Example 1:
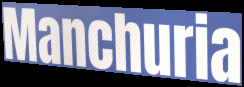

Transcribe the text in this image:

Manchuria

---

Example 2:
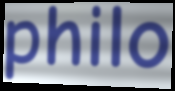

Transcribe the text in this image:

philo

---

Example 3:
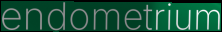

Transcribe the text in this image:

endometrium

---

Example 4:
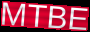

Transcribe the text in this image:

MTBE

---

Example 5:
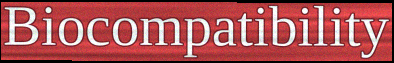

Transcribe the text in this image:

Biocompatibility